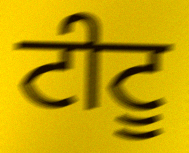
ਟੀਟੂ